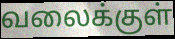
வலைக்குள்